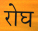
रोघ